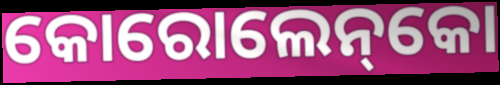
କୋରୋଲେନ୍‌କୋ